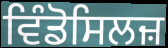
ਵਿੰਡੋਸਿਲਜ਼